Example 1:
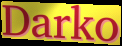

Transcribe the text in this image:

Darko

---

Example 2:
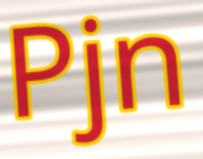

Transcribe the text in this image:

Pjn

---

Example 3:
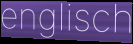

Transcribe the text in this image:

englisch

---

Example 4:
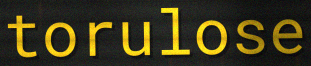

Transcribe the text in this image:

torulose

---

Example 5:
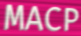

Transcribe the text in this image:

MACP